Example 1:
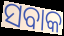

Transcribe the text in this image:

ସବାକ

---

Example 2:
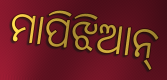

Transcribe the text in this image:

ମାପିଝିଆନ୍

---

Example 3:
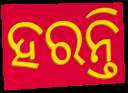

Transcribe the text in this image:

ହରନ୍ତି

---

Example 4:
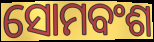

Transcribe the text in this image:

ସୋମବଂଶ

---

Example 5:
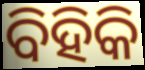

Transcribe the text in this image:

ବିହିକି